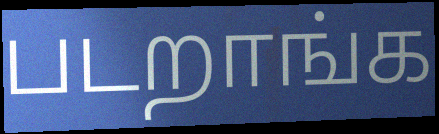
படறாங்க